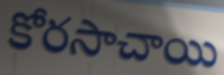
కోరసాచాయి